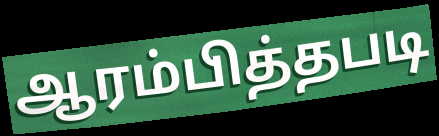
ஆரம்பித்தபடி